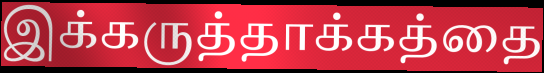
இக்கருத்தாக்கத்தை